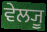
ਵੇਲ੍ਯੂ